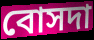
বোসদা